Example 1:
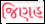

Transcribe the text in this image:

જિણહ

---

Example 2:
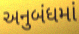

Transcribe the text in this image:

અનુબંધમાં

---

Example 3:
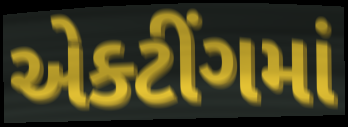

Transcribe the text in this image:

એક્ટીંગમાં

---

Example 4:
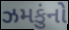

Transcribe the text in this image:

ઝમકુંનો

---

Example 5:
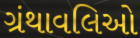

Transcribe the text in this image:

ગ્રંથાવલિઓ